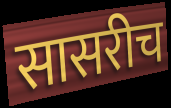
सासरीच